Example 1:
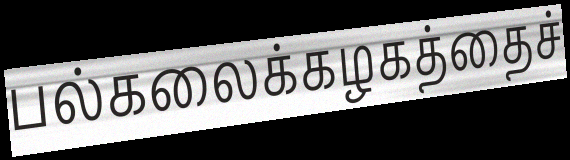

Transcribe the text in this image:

பல்கலைக்கழகத்தைச்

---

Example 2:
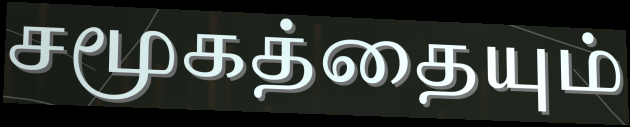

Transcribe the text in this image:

சமூகத்தையும்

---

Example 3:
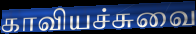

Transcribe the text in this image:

காவியச்சுவை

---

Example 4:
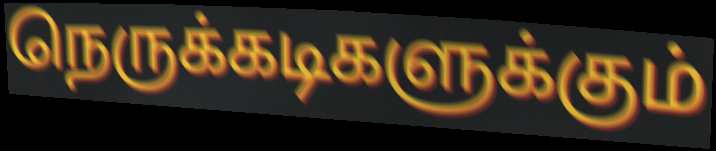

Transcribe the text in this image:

நெருக்கடிகளுக்கும்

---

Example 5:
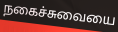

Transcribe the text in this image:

நகைச்சுவையை